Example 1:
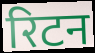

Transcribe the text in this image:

रिटन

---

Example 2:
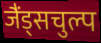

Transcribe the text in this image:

जैंड्सचुल्प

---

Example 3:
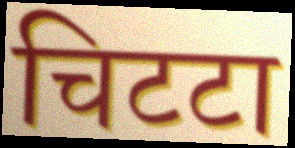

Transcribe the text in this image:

चिटटा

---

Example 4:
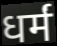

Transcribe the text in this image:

धर्म॑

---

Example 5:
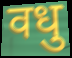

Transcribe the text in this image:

वधु